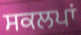
ਸਕਲਪਾਂ